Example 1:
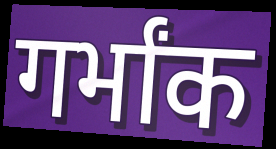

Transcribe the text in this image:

गर्भांक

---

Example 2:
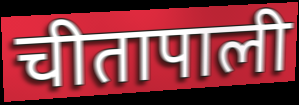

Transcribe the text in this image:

चीतापाली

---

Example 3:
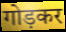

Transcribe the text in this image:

गोड़कर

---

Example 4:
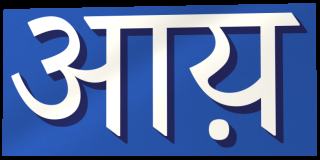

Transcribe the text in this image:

आय़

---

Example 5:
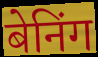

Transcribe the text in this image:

बेनिंग